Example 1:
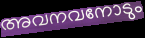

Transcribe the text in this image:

അവനവനോടും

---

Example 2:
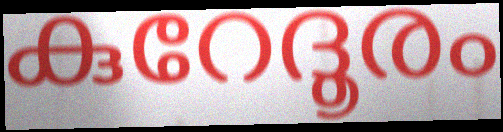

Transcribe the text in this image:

കുറേദൂരം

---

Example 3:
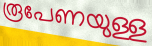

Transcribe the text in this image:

രൂപേണയുള്ള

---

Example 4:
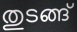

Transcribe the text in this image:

തുടങ്ങ്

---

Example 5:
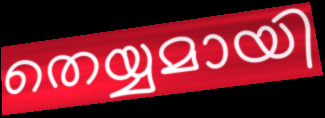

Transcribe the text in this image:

തെയ്യമായി